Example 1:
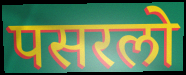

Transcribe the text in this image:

पसरलो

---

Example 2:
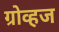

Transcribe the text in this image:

ग्रोव्हज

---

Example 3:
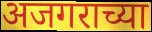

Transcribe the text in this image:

अजगराच्या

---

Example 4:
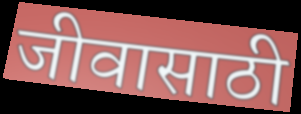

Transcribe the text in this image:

जीवासाठी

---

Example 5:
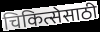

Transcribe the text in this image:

चिकित्सेसाठी